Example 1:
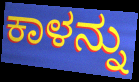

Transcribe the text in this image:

ಕಾಳನ್ನು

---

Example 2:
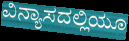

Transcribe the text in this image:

ವಿನ್ಯಾಸದಲ್ಲಿಯೂ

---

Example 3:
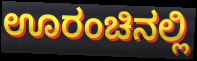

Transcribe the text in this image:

ಊರಂಚಿನಲ್ಲಿ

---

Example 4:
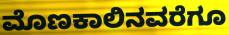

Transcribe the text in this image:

ಮೊಣಕಾಲಿನವರೆಗೂ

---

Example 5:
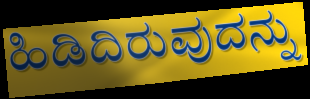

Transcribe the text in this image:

ಹಿಡಿದಿರುವುದನ್ನು